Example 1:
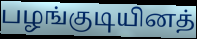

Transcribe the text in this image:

பழங்குடியினத்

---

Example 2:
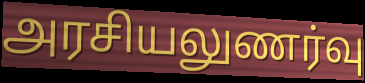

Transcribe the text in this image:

அரசியலுணர்வு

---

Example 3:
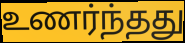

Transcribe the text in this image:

உணர்ந்தது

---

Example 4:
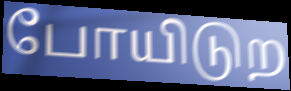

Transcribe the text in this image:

போயிடுற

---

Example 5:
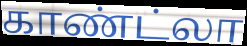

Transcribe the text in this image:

காண்ட்லா